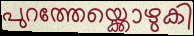
പുറത്തേയ്ക്കൊഴുകി